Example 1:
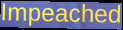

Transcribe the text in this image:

Impeached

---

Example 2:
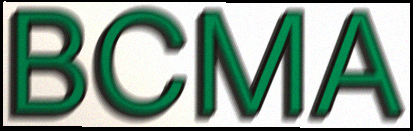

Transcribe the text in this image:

BCMA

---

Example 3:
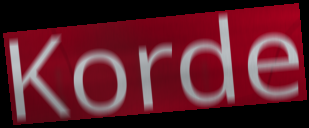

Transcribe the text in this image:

Korde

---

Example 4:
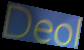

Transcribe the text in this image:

Deol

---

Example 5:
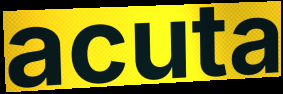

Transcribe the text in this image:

acuta